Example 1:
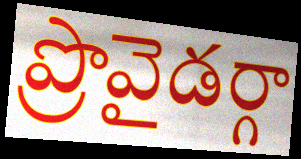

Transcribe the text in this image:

ప్రొవైడర్గా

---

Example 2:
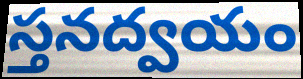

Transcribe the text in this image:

స్తనద్వయం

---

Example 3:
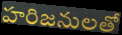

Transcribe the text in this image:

హరిజనులతో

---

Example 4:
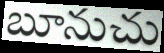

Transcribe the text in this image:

బూనుచు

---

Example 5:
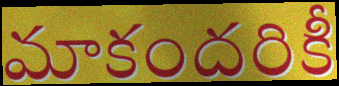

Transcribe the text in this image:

మాకందరికీ